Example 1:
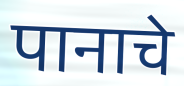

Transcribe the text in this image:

पानाचे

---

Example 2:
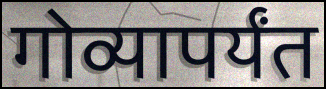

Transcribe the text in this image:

गोव्यापर्यंत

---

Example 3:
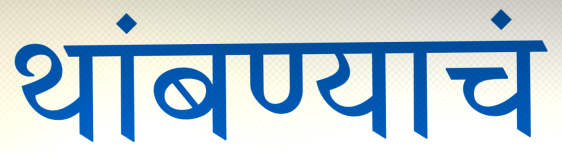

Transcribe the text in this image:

थांबण्याचं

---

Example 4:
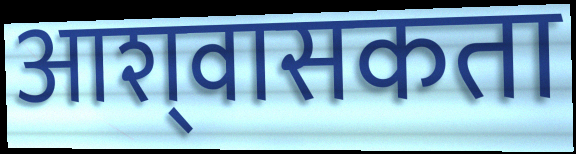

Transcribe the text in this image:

आश्वासकता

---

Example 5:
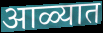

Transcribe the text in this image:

आळ्यात